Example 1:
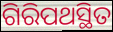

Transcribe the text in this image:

ଗିରିପଥସ୍ଥିତ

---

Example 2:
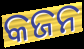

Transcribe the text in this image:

କଜନ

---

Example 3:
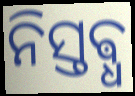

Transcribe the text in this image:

ନିସ୍ତଵ୍ଧ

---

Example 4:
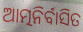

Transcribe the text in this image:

ଆତ୍ମନିର୍ବାସିତ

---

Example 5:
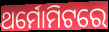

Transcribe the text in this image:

ଥର୍ମୋମିଟରେ